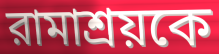
রামাশ্রয়কে